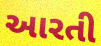
આરતી